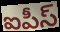
ఐపీస్